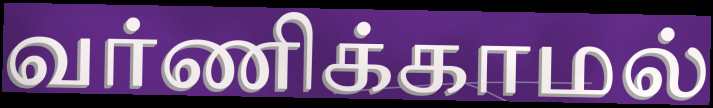
வர்ணிக்காமல்